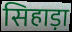
सिहाड़ा